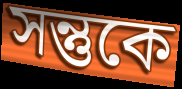
সন্তুকে